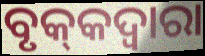
ବୃକ୍‌କଦ୍ଵାରା